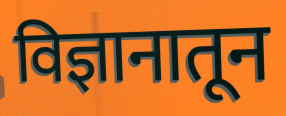
विज्ञानातून